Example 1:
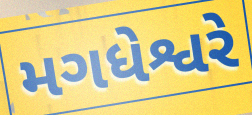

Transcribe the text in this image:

મગધેશ્વરે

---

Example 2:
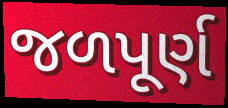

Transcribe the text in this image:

જળપૂર્ણ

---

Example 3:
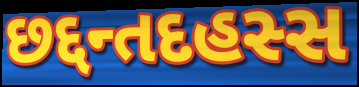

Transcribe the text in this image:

છદ્દન્તદહસ્સ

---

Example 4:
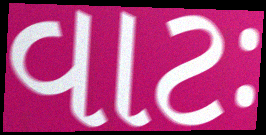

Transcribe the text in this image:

વાટઃ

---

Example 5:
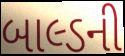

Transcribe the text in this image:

બાલ્ડની